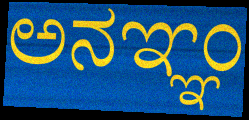
ಅನಞ್ಞಂ